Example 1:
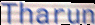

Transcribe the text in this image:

Tharun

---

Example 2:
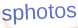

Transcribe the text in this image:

sphotos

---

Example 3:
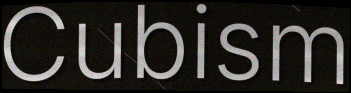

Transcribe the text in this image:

Cubism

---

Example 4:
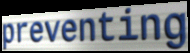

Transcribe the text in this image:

preventing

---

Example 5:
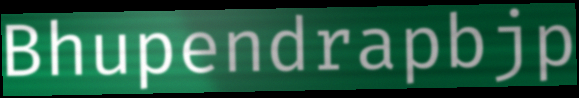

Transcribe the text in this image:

Bhupendrapbjp